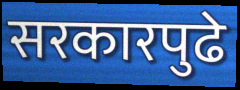
सरकारपुढे